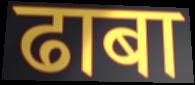
ढाबा